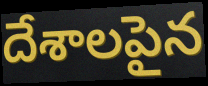
దేశాలపైన